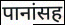
पानांसह